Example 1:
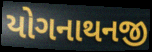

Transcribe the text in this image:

યોગનાથનજી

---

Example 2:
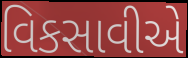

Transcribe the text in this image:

વિકસાવીએ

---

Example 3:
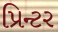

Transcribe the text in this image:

પ્રિન્ટર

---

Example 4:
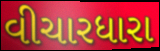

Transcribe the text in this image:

વીચારધારા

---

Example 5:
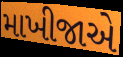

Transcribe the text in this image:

માખીજાએ